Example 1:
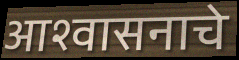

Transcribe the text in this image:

आश्वासनाचे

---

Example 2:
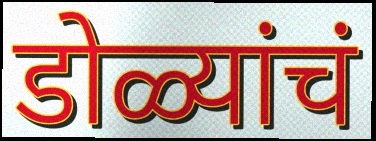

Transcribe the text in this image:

डोळ्यांचं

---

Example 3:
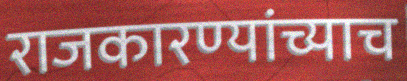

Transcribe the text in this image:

राजकारण्यांच्याच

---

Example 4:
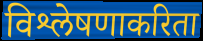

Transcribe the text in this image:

विश्लेषणाकरिता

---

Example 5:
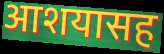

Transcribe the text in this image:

आशयासह